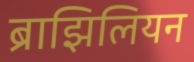
ब्राझिलियन